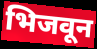
भिजवून